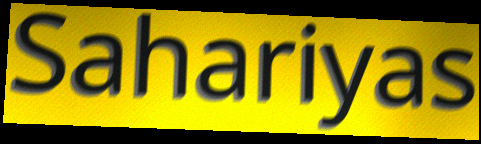
Sahariyas